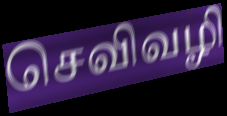
செவிவழி